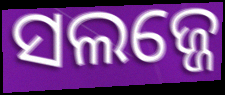
ସଲଜ୍ଜେ